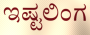
ಇಷ್ಟಲಿಂಗ